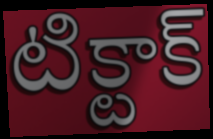
టిక్టాక్